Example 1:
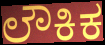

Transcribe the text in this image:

ಲೌಕಿಕ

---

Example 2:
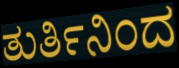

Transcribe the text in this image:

ತುರ್ತಿನಿಂದ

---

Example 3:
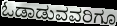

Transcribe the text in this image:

ಓಡಾಡುವವರಿಗೂ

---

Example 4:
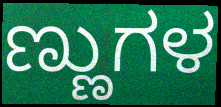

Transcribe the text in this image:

ಣ್ಣುಗಳ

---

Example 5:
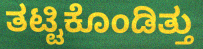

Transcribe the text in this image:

ತಟ್ಟಿಕೊಂಡಿತ್ತು